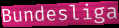
Bundesliga